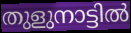
തുളുനാട്ടിൽ